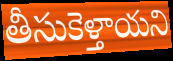
తీసుకెళ్తాయని